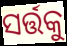
ସର୍ତ୍ତକୁ